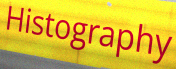
Histography